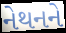
નેથનને